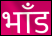
भाँड